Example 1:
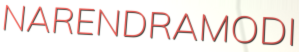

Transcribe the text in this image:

NARENDRAMODI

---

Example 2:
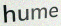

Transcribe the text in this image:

hume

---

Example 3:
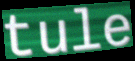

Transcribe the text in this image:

tule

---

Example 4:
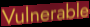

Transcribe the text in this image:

Vulnerable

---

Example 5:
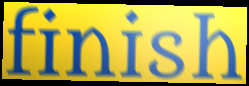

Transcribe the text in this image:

finish